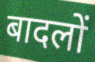
बादलों